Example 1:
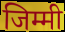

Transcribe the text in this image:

जिम्मी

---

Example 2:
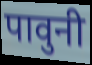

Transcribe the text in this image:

पावुनी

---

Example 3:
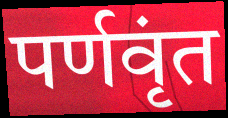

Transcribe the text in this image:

पर्णवृंत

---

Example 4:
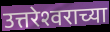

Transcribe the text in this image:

उत्तरेश्वराच्या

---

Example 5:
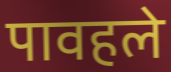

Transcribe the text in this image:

पावहले